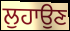
ਲੁਹਾਉਣ